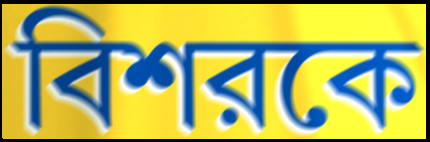
বিশরকে